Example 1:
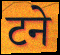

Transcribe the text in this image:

टने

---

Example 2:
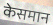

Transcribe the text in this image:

केसमान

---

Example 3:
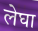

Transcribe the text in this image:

लेघा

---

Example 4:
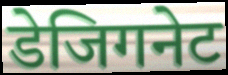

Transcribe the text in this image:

डेजिगनेट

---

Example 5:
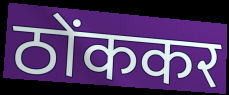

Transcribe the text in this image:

ठोंककर